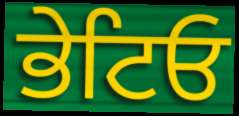
ਭੇਟਿਓ